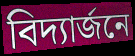
বিদ্যার্জনে